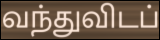
வந்துவிடப்